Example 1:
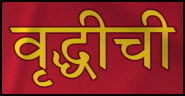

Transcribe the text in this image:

वृद्धीची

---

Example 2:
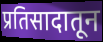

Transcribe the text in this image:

प्रतिसादातून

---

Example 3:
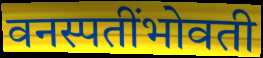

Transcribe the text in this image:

वनस्पतींभोवती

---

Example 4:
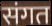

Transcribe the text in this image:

संगत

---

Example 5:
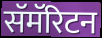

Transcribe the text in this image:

सॅमॅरिटन